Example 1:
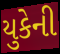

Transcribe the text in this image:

યુકેની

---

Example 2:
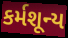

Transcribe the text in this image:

કર્મશૂન્ય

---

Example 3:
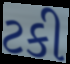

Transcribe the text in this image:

ટકી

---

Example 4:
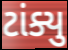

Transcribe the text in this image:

ટાંક્યુ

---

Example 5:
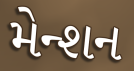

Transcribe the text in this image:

મેન્શન